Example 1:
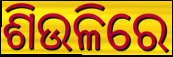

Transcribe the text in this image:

ଶିଉଳିରେ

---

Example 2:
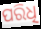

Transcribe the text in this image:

ପରିଧି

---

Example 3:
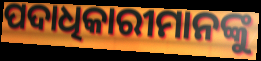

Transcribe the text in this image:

ପଦାଧିକାରୀମାନଙ୍କୁ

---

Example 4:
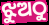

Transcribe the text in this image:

ଝୁଅଠୁ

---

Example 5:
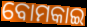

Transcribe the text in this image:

ବୋମକାଇ